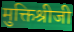
मुक्तिश्रीजी